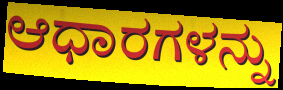
ಆಧಾರಗಳನ್ನು